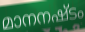
മാനനഷ്ടം